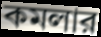
কমলার